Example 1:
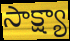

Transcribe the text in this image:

సాక్ష్యా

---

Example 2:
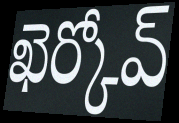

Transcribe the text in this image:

ఖెర్కోవ్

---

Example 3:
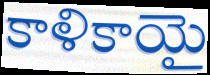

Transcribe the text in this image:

కాళికాయై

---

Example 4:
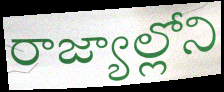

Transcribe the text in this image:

రాజ్యాల్లోని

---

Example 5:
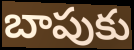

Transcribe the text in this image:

బాపుకు